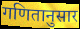
गणितानुसार